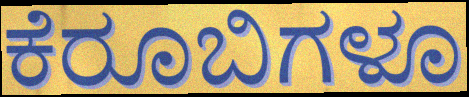
ಕೆರೂಬಿಗಳೂ